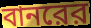
বানরের